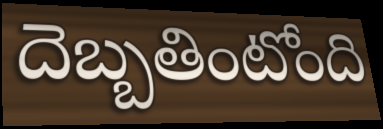
దెబ్బతింటోంది